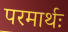
परमार्थः